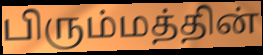
பிரும்மத்தின்